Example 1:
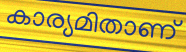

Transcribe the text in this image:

കാര്യമിതാണ്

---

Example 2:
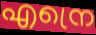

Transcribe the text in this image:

എന്രെ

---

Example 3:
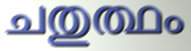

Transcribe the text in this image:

ചതുത്ഥം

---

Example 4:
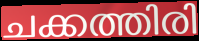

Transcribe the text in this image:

ചക്കത്തിരി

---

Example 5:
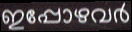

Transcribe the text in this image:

ഇപ്പോഴവർ